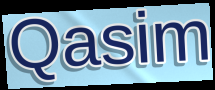
Qasim